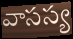
వాసస్య